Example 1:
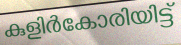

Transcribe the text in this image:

കുളിർകോരിയിട്ട്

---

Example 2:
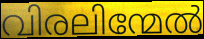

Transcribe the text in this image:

വിരലിന്മേൽ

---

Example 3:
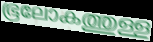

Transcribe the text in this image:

ഭൂലോകത്തുള്ള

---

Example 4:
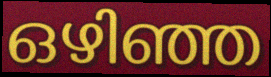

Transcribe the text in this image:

ഒഴിഞ്ഞ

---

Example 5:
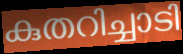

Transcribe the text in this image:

കുതറിച്ചാടി